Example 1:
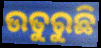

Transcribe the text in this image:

ଉତୁରୁଛି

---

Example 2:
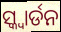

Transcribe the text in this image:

ସ୍କ୍ବାର୍ଡନ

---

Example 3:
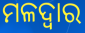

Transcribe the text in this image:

ମଳଦ୍ୱାର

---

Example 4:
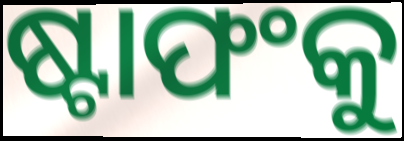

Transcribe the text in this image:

ଷ୍ଟାଫଂକୁ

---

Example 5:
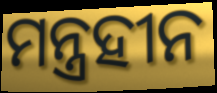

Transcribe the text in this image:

ମନ୍ତ୍ରହୀନ